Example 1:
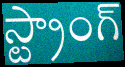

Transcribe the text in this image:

స్ట్రాంగ్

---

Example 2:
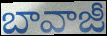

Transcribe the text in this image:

బావాజీ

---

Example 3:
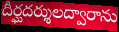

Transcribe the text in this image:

దీర్ఘదర్శులద్వారాను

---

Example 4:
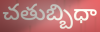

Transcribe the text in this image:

చతుబ్బిధా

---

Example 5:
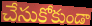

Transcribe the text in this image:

చేసుకోకుండా